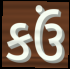
કઉં